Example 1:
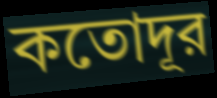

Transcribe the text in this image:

কতোদূর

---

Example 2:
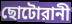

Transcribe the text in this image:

ছোটোরানী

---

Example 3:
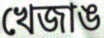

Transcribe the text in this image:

খেজাঙ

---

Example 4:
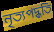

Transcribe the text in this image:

নৃত্যপদ্ধতি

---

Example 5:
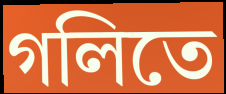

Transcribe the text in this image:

গলিতে